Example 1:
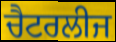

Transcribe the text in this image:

ਚੈਟਰਲੀਜ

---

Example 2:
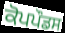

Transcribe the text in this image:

ਕੋਪਪੌਡਸ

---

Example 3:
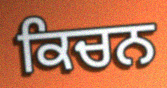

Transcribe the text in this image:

ਕਿਚਨ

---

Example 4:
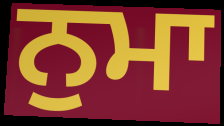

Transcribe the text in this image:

ਨੁਮਾ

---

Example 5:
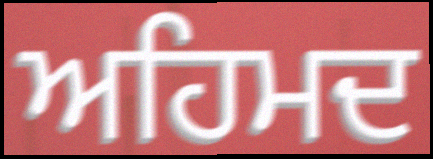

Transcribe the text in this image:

ਅਹਿਮਦ